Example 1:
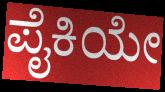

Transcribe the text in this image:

ಪೈಕಿಯೇ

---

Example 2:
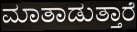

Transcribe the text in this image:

ಮಾತಾಡುತ್ತಾರೆ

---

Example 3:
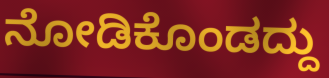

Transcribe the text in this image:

ನೋಡಿಕೊಂಡದ್ದು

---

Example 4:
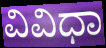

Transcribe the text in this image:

ವಿವಿಧಾ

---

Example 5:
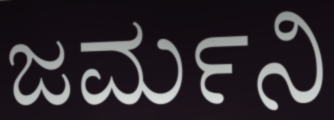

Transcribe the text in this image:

ಜರ್ಮನಿ